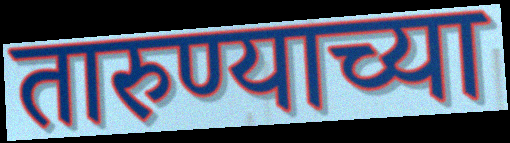
तारुण्याच्या